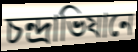
চন্দ্রাভিযানে